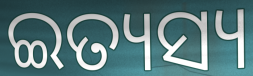
ଇତ୍ୟସ୍ୟ